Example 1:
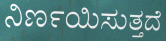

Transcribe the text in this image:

ನಿರ್ಣಯಿಸುತ್ತದೆ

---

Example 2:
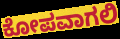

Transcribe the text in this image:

ಕೋಪವಾಗಲಿ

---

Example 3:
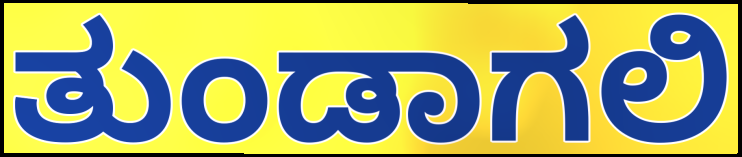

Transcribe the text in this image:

ತುಂಡಾಗಲಿ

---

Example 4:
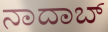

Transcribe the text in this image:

ನಾದಾಬ್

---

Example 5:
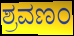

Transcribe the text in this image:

ಶ್ರವಣಂ